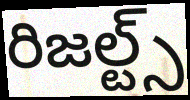
రిజల్ట్స్